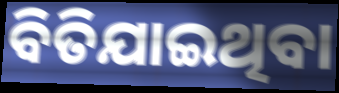
ବିତିଯାଇଥିବା